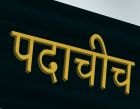
पदाचीच